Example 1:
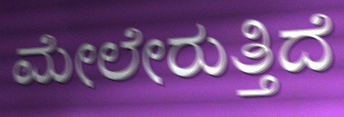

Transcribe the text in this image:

ಮೇಲೇರುತ್ತಿದೆ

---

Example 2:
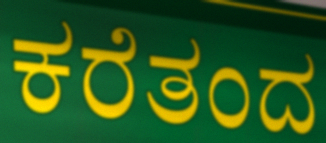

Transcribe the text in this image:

ಕರೆತಂದ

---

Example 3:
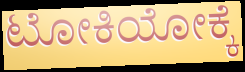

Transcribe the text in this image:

ಟೋಕಿಯೋಕ್ಕೆ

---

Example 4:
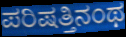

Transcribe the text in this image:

ಪರಿಷತ್ತಿನಂಥ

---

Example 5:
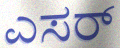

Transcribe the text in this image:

ಎಸರ್